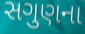
સગુણના